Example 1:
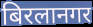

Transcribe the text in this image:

बिरलानगर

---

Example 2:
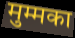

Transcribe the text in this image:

मुम्मका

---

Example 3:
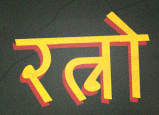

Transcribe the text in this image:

रत्नो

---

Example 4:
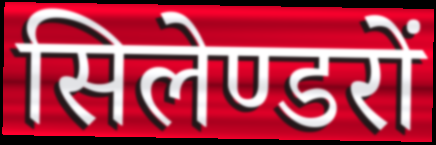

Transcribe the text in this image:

सिलेण्डरों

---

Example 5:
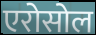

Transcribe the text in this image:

एरोसोल